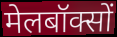
मेलबॉक्सों